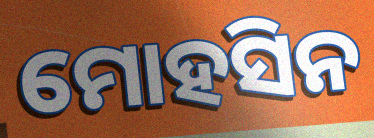
ମୋହସିନ